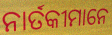
ନାର୍ତକୀମାନେ